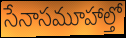
సేనాసమూహాల్తో